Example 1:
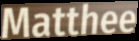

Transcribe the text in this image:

Matthee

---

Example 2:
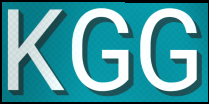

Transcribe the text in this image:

KGG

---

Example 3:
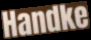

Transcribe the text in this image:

Handke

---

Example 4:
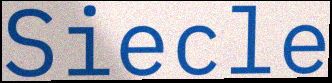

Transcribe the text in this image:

Siecle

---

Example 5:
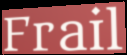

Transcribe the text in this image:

Frail